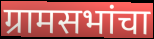
ग्रामसभांचा